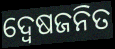
ଦ୍ଵେଷଜନିତ